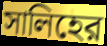
সালিহের